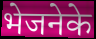
भेजनेके